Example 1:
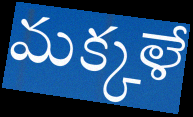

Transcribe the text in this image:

మక్కళే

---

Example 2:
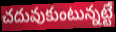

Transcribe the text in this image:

చదువుకుంటున్నట్టే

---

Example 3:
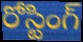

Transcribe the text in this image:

రోస్టింగ్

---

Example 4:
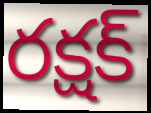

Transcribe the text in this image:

రక్షక్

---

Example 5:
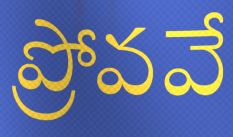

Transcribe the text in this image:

ప్రోవవే